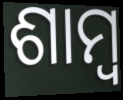
ଶାମ୍ୱ